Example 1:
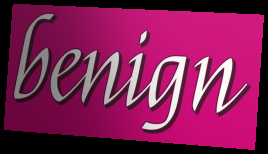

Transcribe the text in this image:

benign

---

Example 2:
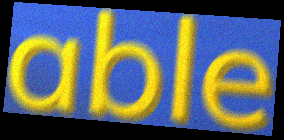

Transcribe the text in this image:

able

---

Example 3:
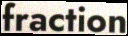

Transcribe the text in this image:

fraction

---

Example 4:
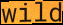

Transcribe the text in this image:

wild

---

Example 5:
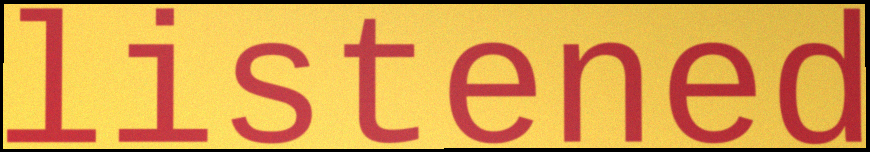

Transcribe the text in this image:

listened